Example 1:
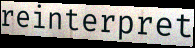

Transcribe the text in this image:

reinterpret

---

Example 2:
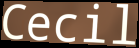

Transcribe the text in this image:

Cecil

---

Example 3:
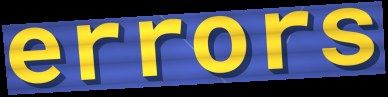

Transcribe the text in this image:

errors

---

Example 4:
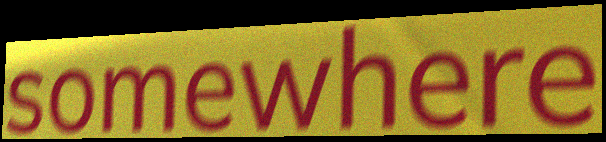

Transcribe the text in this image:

somewhere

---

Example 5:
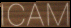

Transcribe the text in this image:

ICAM